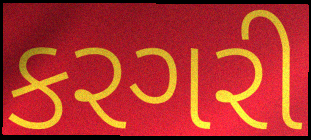
કરગરી